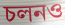
চলনও